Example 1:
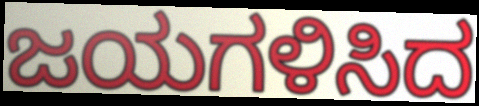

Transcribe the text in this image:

ಜಯಗಳಿಸಿದ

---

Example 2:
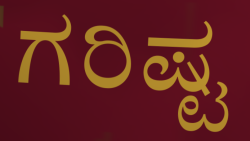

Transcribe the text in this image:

ಗರಿಷ್ಟ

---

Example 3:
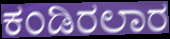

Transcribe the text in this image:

ಕಂಡಿರಲಾರ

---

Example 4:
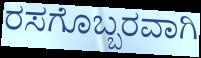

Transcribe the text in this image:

ರಸಗೊಬ್ಬರವಾಗಿ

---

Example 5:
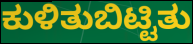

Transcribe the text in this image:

ಕುಳಿತುಬಿಟ್ಟಿತು